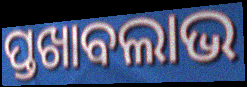
ପ୍ତଖାବଲାଭ